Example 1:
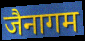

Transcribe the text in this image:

जैनागम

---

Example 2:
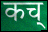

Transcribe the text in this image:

कच्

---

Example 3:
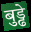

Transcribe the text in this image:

बुड्ढे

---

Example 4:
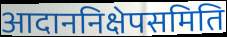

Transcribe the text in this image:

आदाननिक्षेपसमिति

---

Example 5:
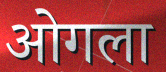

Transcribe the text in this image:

ओगला